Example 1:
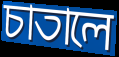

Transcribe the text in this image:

চাতালে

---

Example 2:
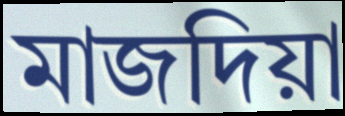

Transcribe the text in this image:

মাজদিয়া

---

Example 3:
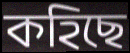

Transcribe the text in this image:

কহিছে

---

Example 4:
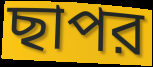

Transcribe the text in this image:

ছাপর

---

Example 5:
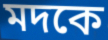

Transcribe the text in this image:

মদকে